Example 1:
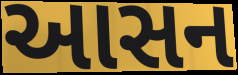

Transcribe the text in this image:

આસન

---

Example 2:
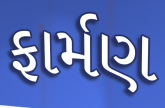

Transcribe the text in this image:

ફાર્મણ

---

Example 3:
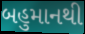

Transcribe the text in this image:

બહુમાનથી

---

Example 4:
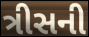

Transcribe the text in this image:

ત્રીસની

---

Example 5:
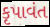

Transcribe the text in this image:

કૃપાવંત